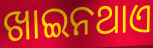
ଖାଇନଥାଏ